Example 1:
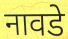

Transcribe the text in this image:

नावडे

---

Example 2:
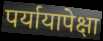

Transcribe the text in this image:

पर्यायापेक्षा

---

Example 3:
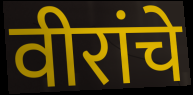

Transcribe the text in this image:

वीरांचे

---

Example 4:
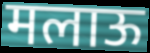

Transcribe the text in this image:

मलाऊ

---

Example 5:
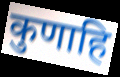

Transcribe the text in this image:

कुणाहि